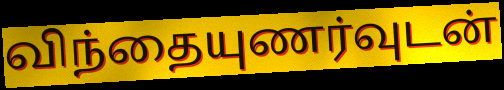
விந்தையுணர்வுடன்